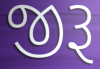
જીરૂ